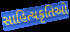
સાહિત્યકૃતિઓ